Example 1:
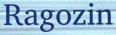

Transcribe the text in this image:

Ragozin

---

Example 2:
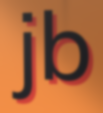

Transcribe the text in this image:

jb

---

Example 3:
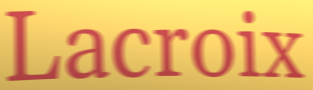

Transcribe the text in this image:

Lacroix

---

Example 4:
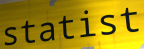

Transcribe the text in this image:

statist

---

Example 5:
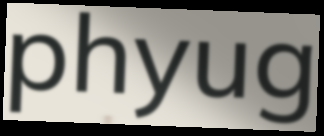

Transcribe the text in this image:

phyug